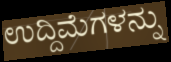
ಉದ್ದಿಮೆಗಳನ್ನು